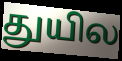
துயில